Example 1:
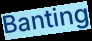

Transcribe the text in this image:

Banting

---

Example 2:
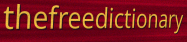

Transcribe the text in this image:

thefreedictionary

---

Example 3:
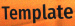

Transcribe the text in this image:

Template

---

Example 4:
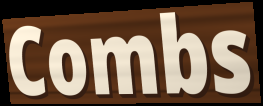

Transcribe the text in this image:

Combs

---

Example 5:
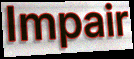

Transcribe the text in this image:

Impair